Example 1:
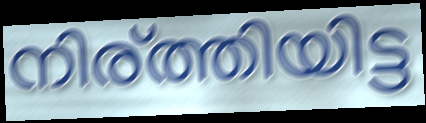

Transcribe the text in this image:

നിര്ത്തിയിട്ട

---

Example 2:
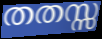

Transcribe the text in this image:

തതസ്സ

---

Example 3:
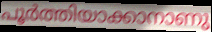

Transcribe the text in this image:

പൂർത്തിയാക്കാനാണു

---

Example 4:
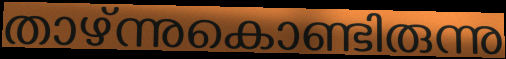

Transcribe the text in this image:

താഴ്ന്നുകൊണ്ടിരുന്നു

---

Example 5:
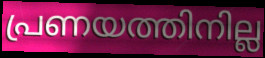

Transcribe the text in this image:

പ്രണയത്തിനില്ല